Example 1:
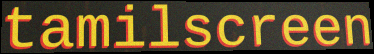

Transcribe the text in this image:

tamilscreen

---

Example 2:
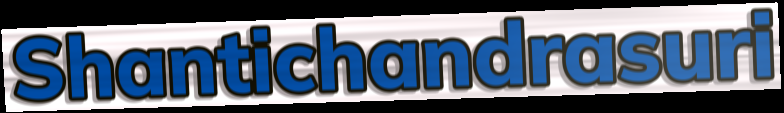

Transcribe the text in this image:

Shantichandrasuri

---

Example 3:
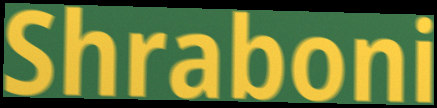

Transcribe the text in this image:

Shraboni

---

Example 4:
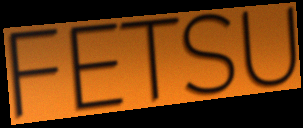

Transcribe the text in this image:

FETSU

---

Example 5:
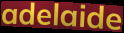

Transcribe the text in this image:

adelaide